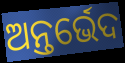
ଅନ୍ତର୍ଭେଦ